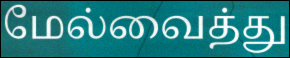
மேல்வைத்து